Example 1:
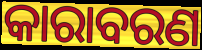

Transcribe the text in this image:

କାରାବରଣ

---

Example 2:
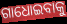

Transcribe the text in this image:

ଗାଧୋଇବାକୁ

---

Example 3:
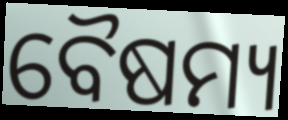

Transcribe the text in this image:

ବୈଷମ୍ୟ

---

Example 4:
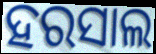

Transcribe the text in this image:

ହରସାଲ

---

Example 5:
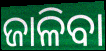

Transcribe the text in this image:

ଜାଳିବା